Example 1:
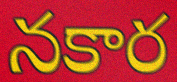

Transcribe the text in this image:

నకార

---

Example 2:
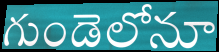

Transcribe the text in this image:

గుండెలోనూ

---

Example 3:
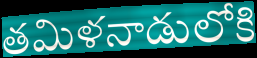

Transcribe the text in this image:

తమిళనాడులోకి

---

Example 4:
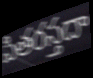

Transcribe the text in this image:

పితరస్తదా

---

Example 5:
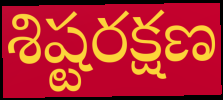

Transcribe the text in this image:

శిష్టరక్షణ